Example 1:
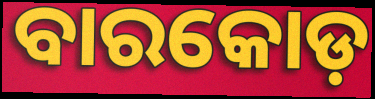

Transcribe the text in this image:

ବାରକୋଡ଼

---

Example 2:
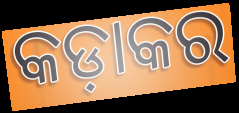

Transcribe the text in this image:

କଡ଼ାକର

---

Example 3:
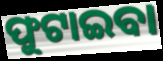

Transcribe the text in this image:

ଫୁଟାଇବା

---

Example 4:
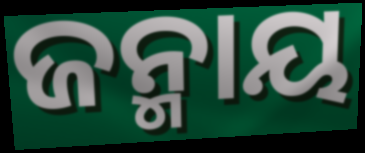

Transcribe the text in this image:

ଜନ୍ମାୟ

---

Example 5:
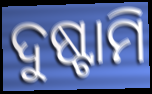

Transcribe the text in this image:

ଦୁଷ୍ଟାମି